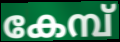
കേമ്പ്